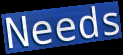
Needs